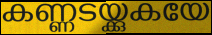
കണ്ണടയ്ക്കുകയേ